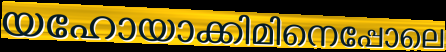
യഹോയാക്കിമിനെപ്പോലെ